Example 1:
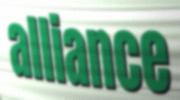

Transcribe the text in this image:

alliance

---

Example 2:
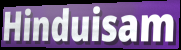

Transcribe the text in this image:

Hinduisam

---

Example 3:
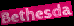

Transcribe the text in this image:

Bethesda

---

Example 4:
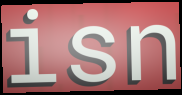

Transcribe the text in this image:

isn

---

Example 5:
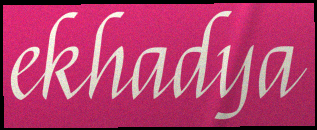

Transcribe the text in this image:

ekhadya